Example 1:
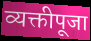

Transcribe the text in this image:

व्यक्तीपूजा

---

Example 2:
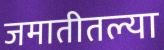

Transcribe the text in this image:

जमातीतल्या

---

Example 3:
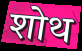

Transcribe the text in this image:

शोथ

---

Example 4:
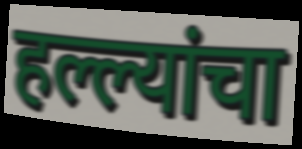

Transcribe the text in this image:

हल्ल्यांचा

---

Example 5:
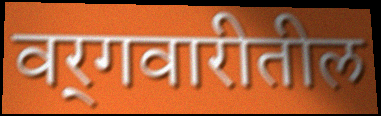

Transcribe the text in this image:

वर्गवारीतील